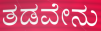
ತಡವೇನು